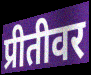
प्रीतीवर